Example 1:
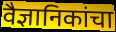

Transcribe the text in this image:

वैज्ञानिकांचा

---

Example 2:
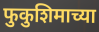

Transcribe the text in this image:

फुकुशिमाच्या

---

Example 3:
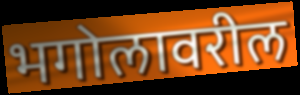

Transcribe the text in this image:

भगोलावरील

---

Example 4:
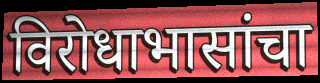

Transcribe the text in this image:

विरोधाभासांचा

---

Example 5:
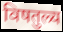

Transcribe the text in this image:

विषतुल्य